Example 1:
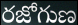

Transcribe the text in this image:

రజోగుణ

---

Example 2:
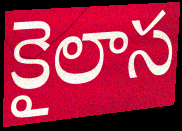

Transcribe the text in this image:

కైలాస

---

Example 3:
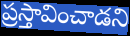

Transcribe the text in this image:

ప్రస్తావించాడని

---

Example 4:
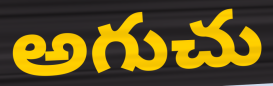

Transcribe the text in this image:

అగుచు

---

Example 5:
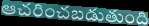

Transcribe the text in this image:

ఆచరించబడుతుంది